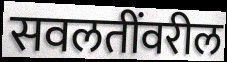
सवलतींवरील